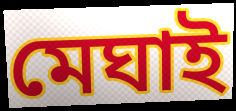
মেঘাই